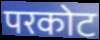
परकोट